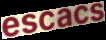
escacs